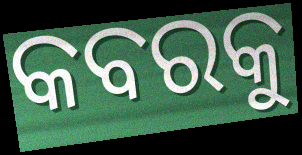
କବରକୁ